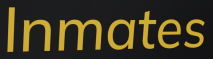
Inmates